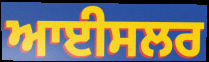
ਆਈਸਲਰ